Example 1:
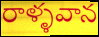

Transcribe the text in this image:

రాళ్ళవాన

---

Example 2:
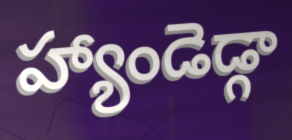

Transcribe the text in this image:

హ్యాండెడ్గా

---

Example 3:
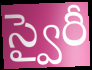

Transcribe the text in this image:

స్వైరీ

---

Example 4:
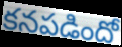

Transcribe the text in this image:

కనపడిందో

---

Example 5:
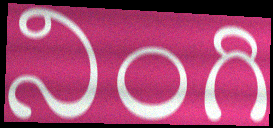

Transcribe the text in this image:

నింగి